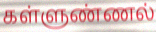
கள்ளுண்ணல்